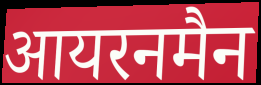
आयरनमैन